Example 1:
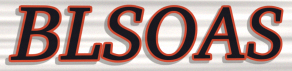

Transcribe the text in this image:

BLSOAS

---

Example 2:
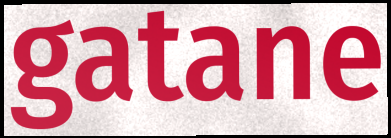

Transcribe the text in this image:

gatane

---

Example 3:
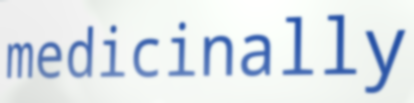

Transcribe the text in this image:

medicinally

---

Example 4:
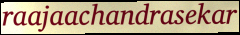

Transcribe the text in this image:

raajaachandrasekar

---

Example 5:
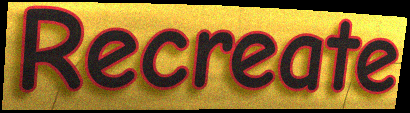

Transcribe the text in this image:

Recreate